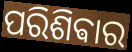
ପରିଶିଵାର